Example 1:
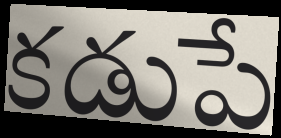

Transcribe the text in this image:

కడుపే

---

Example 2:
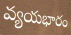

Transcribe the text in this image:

వ్యయభారం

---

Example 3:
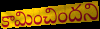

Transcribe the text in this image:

కామించిందని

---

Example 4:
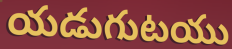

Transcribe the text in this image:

యడుగుటయు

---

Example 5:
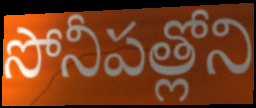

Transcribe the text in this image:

సోనీపత్లోని